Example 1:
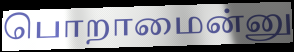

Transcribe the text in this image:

பொறாமைன்னு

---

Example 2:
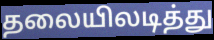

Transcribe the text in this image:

தலையிலடித்து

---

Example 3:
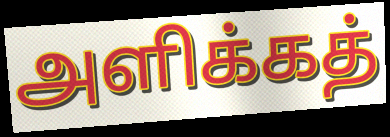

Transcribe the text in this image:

அளிக்கத்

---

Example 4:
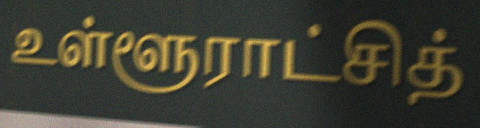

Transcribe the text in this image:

உள்ளூராட்சித்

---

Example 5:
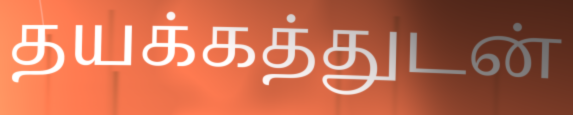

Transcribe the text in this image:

தயக்கத்துடன்